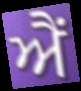
ਐਂ